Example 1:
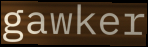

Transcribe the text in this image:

gawker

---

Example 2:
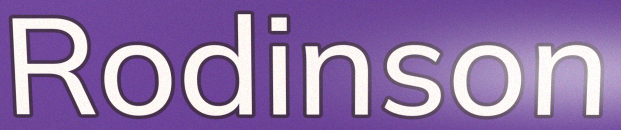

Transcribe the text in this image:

Rodinson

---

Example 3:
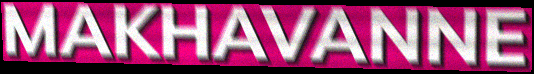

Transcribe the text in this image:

MAKHAVANNE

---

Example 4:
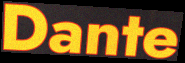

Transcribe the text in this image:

Dante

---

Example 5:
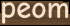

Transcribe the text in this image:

peom